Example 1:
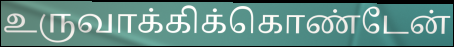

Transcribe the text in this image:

உருவாக்கிக்கொண்டேன்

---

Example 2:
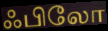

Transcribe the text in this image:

ஃபிலோ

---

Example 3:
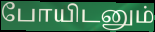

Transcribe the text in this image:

போயிடனும்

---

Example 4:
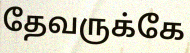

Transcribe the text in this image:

தேவருக்கே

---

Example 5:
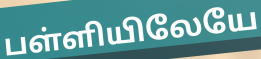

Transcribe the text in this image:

பள்ளியிலேயே